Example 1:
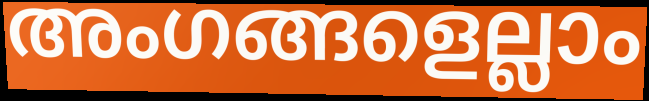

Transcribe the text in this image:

അംഗങ്ങളെല്ലാം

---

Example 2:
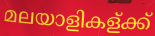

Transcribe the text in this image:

മലയാളികള്ക്ക്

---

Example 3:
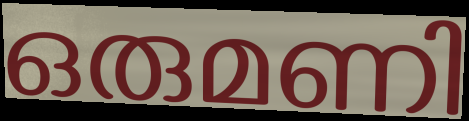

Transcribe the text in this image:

ഒരുമണി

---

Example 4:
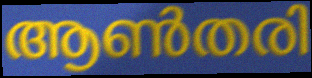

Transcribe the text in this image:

ആൺതരി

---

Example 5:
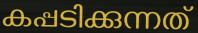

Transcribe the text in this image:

കപ്പടിക്കുന്നത്